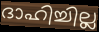
ദാഹിച്ചില്ല